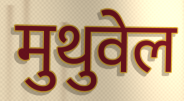
मुथुवेल